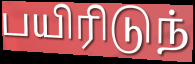
பயிரிடுந்